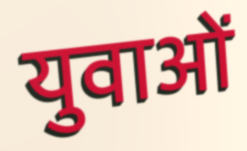
युवाओं